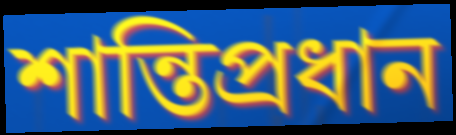
শান্তিপ্রধান